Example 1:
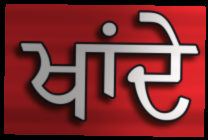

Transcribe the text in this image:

ਖਾਂਦੇ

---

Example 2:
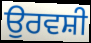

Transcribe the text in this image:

ਉਰਵਸ਼ੀ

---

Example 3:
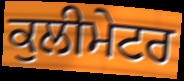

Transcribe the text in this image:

ਕੁਲੀਮੇਟਰ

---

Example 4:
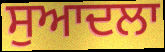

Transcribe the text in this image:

ਸੁਆਦਲਾ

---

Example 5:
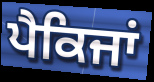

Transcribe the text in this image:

ਪੈਕਿਜਾਂ